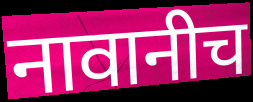
नावानीच